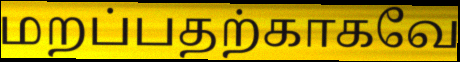
மறப்பதற்காகவே